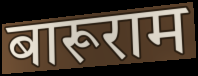
बारूराम